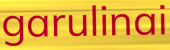
garulinai